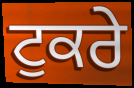
ਟੁਕਰੇ